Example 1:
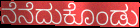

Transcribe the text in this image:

ನೆನೆದುಕೊಂಡು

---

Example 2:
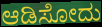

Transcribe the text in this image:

ಆಡಿಸೋದು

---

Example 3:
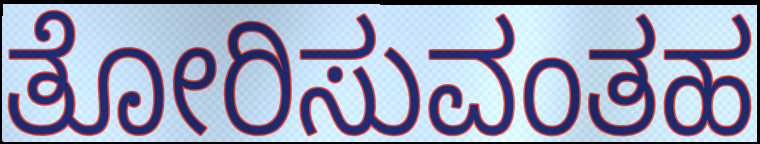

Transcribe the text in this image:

ತೋರಿಸುವಂತಹ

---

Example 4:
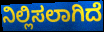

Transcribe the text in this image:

ನಿಲ್ಲಿಸಲಾಗಿದೆ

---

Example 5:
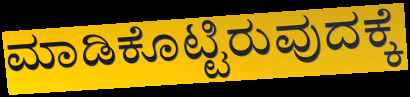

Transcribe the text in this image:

ಮಾಡಿಕೊಟ್ಟಿರುವುದಕ್ಕೆ